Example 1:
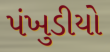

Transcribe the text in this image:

પંખુડીયો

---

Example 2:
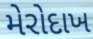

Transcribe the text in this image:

મેરોદાખ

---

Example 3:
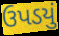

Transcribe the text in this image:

ઉપડયું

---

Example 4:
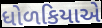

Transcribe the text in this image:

ધોળકિયાએ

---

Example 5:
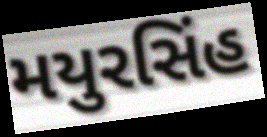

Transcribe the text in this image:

મયુરસિંહ